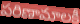
పరిణామాలకీ